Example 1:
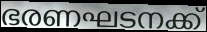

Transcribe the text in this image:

ഭരണഘടനക്ക്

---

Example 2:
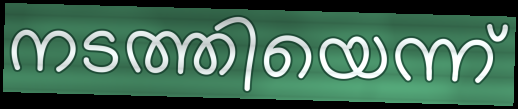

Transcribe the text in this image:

നടത്തിയെന്ന്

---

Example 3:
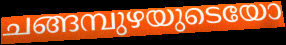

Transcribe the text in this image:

ചങ്ങമ്പുഴയുടെയോ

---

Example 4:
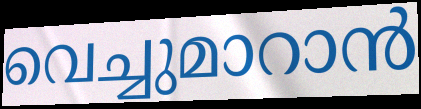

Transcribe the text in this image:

വെച്ചുമാറാൻ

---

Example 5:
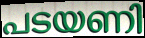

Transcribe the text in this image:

പടയണി